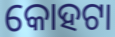
କୋହଟା